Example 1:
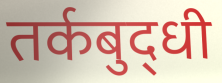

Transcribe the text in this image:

तर्कबुद्धी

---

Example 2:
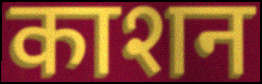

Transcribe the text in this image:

काशन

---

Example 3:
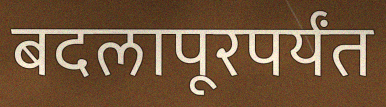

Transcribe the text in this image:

बदलापूरपर्यंत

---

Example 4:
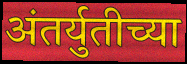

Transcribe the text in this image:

अंतर्युतीच्या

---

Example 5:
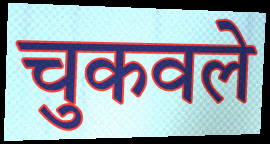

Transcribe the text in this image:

चुकवले